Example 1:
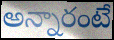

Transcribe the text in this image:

అన్నారంటే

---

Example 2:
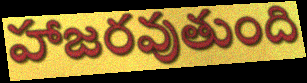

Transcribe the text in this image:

హాజరవుతుంది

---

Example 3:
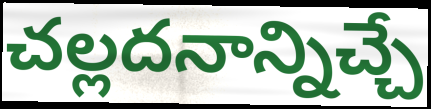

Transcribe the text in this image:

చల్లదనాన్నిచ్చే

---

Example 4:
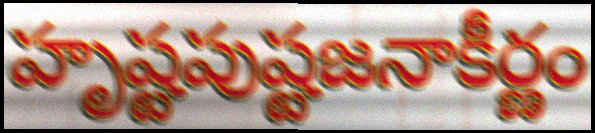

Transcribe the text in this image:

హృష్టపుష్టజనాకీర్ణం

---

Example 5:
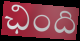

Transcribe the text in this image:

ఛింది